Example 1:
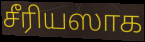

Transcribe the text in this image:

சீரியஸாக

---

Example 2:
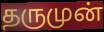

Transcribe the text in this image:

தருமுன்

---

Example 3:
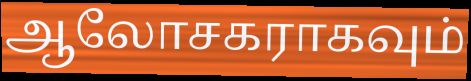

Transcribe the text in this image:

ஆலோசகராகவும்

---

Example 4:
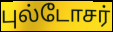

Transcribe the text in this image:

புல்டோசர்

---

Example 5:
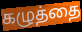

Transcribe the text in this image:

கழுத்தை